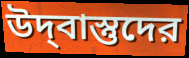
উদ্‌বাস্তুদের